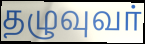
தழுவுவர்